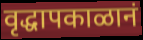
वृद्धापकाळानं